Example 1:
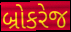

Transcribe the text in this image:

બ્રોકરેજ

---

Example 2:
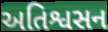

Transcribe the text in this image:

અતિશ્વસન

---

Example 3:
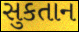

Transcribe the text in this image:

સુકતાન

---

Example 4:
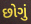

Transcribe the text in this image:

છોગું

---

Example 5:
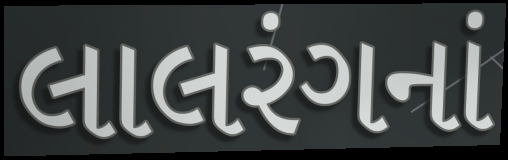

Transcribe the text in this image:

લાલરંગનાં